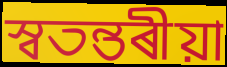
স্বতন্তৰীয়া